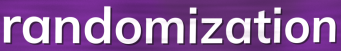
randomization